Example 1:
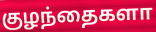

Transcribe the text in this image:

குழந்தைகளா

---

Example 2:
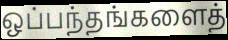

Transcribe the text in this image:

ஒப்பந்தங்களைத்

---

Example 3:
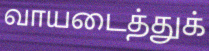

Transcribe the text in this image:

வாயடைத்துக்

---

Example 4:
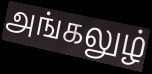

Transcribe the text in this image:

அங்கலுழ்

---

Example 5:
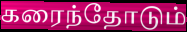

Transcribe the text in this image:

கரைந்தோடும்